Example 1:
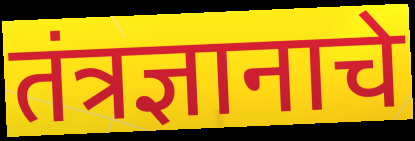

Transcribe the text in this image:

तंत्रज्ञानाचे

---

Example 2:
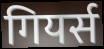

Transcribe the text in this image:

गियर्स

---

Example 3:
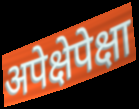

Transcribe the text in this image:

अपेक्षेपेक्षा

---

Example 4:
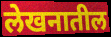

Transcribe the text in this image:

लेखनातील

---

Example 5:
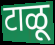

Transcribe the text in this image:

टाळू